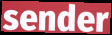
sender